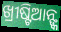
ଖ୍ରୀଷ୍ଟିଆନ୍ଙ୍କ